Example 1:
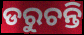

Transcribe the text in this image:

ଡରୁଚନ୍ତି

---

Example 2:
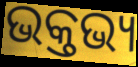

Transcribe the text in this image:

ଭକ୍ତଭ୍ୟ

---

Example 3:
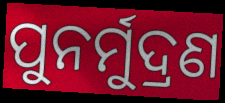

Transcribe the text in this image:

ପୁନର୍ମୁଦ୍ରଣ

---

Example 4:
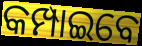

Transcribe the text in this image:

କମ୍ପାଇବେ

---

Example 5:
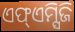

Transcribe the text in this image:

ଏଫ୍ଏମ୍ସିଜି